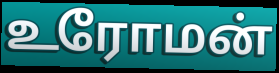
உரோமன்